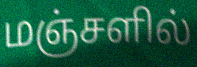
மஞ்சளில்